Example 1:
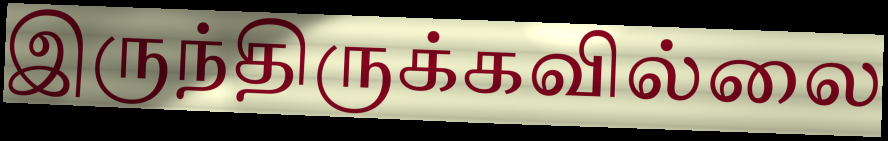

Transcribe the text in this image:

இருந்திருக்கவில்லை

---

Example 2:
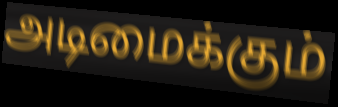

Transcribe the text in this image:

அடிமைக்கும்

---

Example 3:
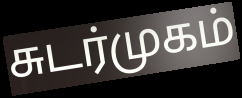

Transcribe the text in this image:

சுடர்முகம்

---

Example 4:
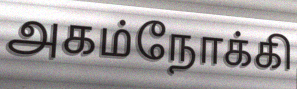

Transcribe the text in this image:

அகம்நோக்கி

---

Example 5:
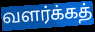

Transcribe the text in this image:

வளர்க்கத்